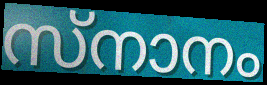
സ്നാനം